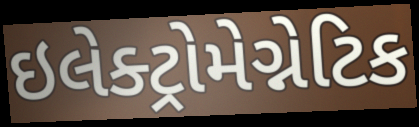
ઇલેક્ટ્રોમેગ્નેટિક